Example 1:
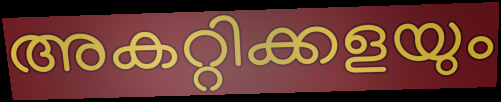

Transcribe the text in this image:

അകറ്റിക്കളയും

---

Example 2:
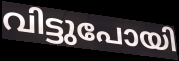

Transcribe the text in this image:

വിട്ടുപോയി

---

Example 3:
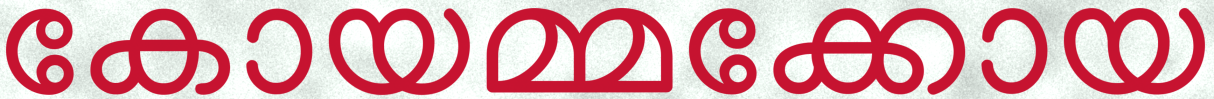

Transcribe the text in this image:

കോയമ്മക്കോയ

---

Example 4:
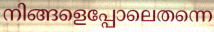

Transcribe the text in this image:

നിങ്ങളെപ്പോലെതന്നെ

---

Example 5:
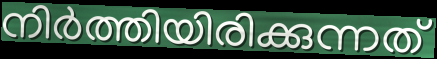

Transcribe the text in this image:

നിർത്തിയിരിക്കുന്നത്